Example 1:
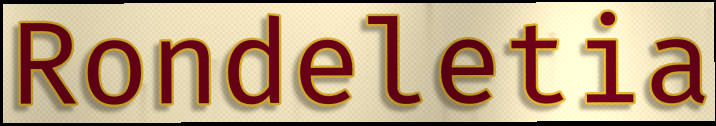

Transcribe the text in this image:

Rondeletia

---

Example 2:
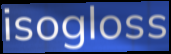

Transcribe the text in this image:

isogloss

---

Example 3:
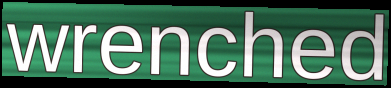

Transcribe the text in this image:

wrenched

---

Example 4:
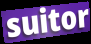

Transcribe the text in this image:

suitor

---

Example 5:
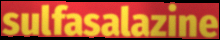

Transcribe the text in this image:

sulfasalazine